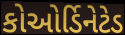
કોઓર્ડિનેટેડ